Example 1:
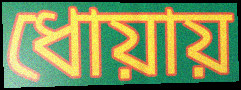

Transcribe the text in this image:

ধোয়ায়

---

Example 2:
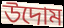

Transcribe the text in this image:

উদোম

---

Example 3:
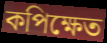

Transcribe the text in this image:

কপিক্ষেত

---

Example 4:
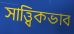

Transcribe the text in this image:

সাত্ত্বিকভাব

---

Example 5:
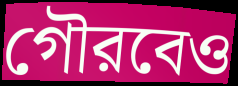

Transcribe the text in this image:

গৌরবেও